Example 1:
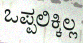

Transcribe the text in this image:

ಒಪ್ಪಲಿಕ್ಕಿಲ್ಲ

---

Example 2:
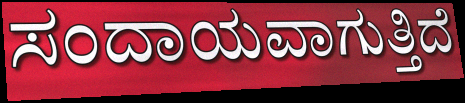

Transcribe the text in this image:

ಸಂದಾಯವಾಗುತ್ತಿದೆ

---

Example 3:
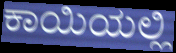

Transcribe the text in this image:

ಕಾಯಿಯಲ್ಲಿ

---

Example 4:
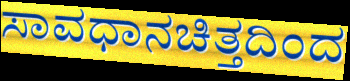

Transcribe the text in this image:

ಸಾವಧಾನಚಿತ್ತದಿಂದ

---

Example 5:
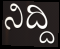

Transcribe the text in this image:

ನಿದ್ದಿ